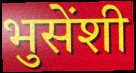
भुसेंशी